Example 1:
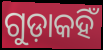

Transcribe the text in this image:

ଗୁଡ଼ାକହିଁ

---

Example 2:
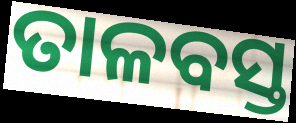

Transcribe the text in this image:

ତାଳବସ୍ତ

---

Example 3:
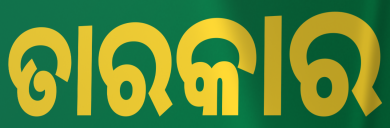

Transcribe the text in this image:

ତାରକାର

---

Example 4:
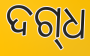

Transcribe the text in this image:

ଦଗ୍‌ଧ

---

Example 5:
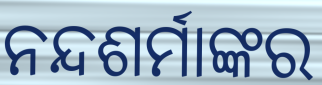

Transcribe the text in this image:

ନନ୍ଦଶର୍ମାଙ୍କର